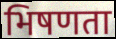
भिषणता